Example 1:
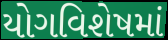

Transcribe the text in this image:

યોગવિશેષમાં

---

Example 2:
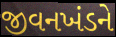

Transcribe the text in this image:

જીવનખંડને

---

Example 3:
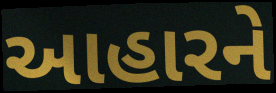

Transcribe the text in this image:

આહારને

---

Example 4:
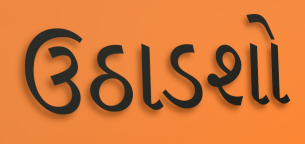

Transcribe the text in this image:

ઉઠાડશો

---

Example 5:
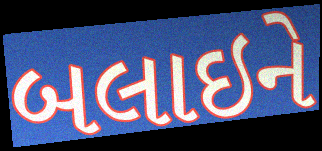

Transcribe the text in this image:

બલાઇને